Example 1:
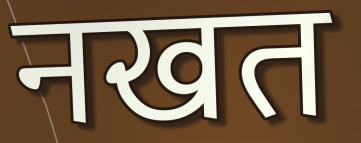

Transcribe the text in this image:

नखत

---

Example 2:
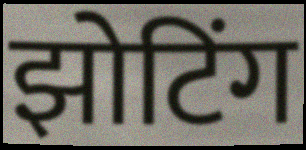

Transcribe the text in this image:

झोटिंग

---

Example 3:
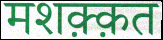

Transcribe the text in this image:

मशक़्क़त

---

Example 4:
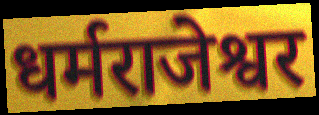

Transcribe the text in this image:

धर्मराजेश्वर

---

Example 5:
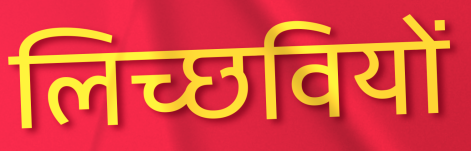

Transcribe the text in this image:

लिच्छवियों